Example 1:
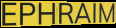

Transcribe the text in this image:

EPHRAIM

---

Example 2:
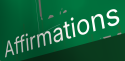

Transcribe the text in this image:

Affirmations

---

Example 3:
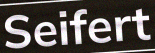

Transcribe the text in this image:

Seifert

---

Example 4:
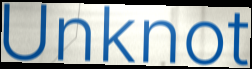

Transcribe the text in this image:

Unknot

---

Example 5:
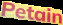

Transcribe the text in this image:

Petain